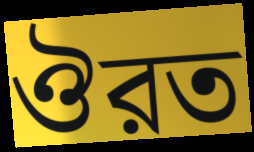
ঔরত